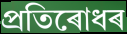
প্ৰতিৰোধৰ